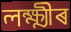
লক্ষ্মীৰ